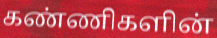
கண்ணிகளின்